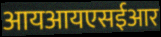
आयआयएसईआर